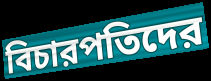
বিচারপতিদের